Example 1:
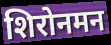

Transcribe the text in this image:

शिरोनमन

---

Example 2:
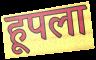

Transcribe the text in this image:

हूपला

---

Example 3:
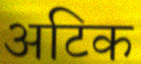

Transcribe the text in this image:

अटिक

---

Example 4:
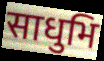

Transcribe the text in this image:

साधुभि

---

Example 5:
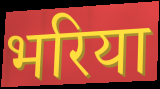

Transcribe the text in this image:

भरिया